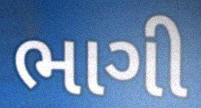
ભાગી